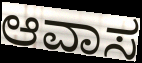
ಆವಾಸ